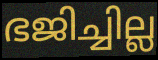
ഭജിച്ചില്ല